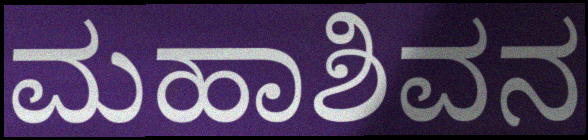
ಮಹಾಶಿವನ